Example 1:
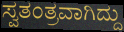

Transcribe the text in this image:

ಸ್ವತಂತ್ರವಾಗಿದ್ದು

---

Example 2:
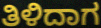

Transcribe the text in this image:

ತಿಳಿದಾಗ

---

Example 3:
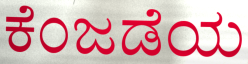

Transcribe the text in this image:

ಕೆಂಜಡೆಯ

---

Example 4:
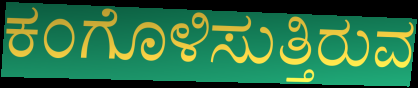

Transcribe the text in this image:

ಕಂಗೊಳಿಸುತ್ತಿರುವ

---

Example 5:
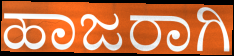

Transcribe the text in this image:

ಹಾಜರಾಗಿ